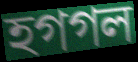
হগগল